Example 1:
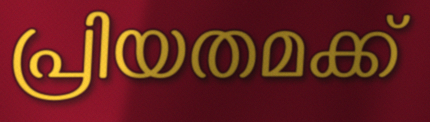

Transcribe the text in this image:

പ്രിയതമക്ക്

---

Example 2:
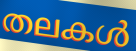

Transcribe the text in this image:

തലകൾ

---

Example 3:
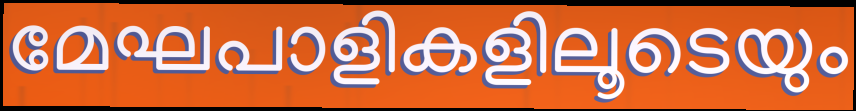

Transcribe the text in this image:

മേഘപാളികളിലൂടെയും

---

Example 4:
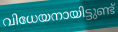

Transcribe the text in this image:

വിധേയനായിട്ടുണ്ട്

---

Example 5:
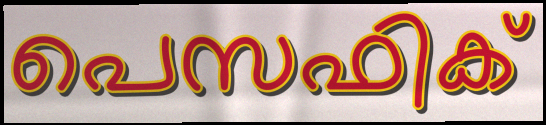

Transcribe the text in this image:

പെസഫിക്